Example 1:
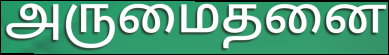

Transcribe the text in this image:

அருமைதனை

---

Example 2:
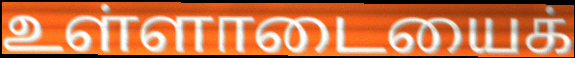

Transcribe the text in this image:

உள்ளாடையைக்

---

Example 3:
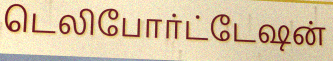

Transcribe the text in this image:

டெலிபோர்ட்டேஷன்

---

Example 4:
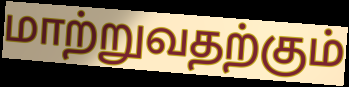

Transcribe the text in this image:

மாற்றுவதற்கும்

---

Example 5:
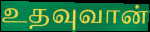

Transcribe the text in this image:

உதவுவான்